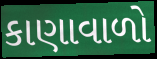
કાણાવાળો